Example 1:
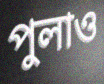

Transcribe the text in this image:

পুলাও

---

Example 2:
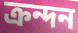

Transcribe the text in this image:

ক্রন্দন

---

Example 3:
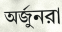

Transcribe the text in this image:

অর্জুনরা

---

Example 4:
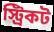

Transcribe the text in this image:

স্ট্রিকট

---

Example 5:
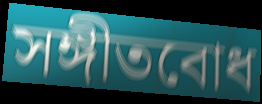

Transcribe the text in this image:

সঙ্গীতবোধ